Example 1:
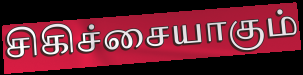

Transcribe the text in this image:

சிகிச்சையாகும்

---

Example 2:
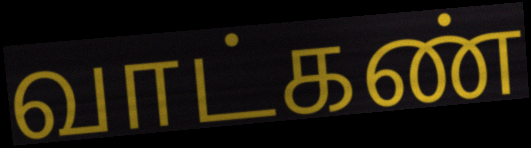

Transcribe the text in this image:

வாட்கண்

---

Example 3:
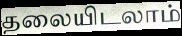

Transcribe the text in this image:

தலையிடலாம்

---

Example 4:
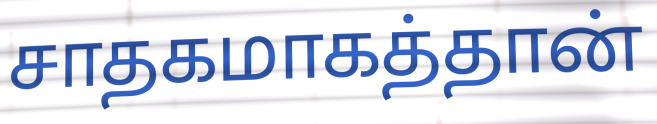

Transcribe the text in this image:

சாதகமாகத்தான்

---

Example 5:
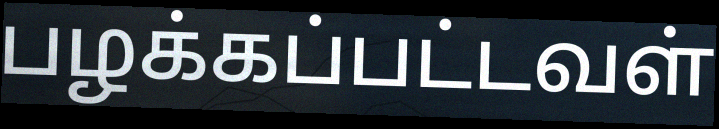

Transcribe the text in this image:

பழக்கப்பட்டவள்